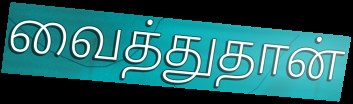
வைத்துதான்